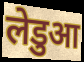
लेडुआ